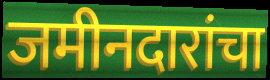
जमीनदारांचा